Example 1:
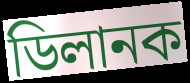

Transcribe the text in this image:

ডিলানক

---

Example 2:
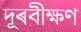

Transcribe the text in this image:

দূৰবীক্ষণ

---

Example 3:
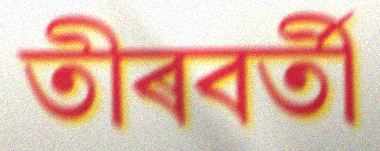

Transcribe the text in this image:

তীৰবৰ্তী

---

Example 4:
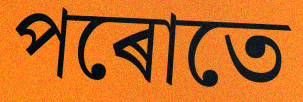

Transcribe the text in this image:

পৰোতে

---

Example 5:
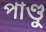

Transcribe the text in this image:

পাণ্ডু